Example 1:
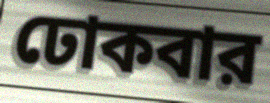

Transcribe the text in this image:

ঢোকবার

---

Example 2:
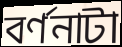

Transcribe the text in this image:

বর্ণনাটা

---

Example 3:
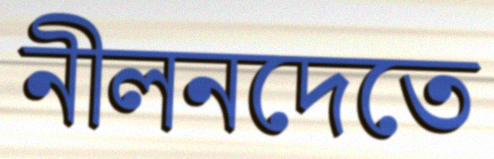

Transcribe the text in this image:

নীলনদেতে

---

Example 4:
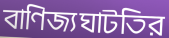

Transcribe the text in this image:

বাণিজ্যঘাটতির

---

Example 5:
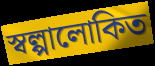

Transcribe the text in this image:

স্বল্পালোকিত